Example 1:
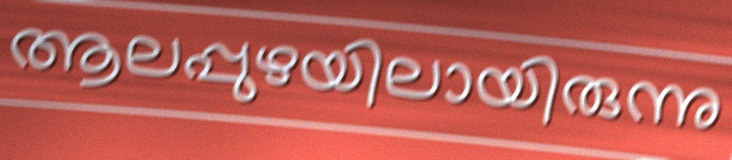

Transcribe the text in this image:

ആലപ്പുഴയിലായിരുന്നു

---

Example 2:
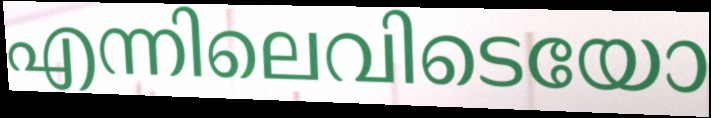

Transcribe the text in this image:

എന്നിലെവിടെയോ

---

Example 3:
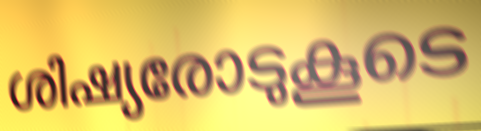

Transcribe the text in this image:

ശിഷ്യരോടുകൂടെ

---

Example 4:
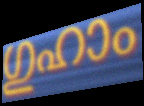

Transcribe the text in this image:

ഗുഹാം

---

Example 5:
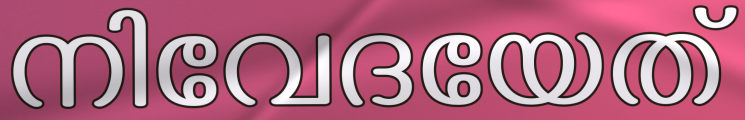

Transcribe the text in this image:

നിവേദയേത്